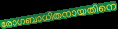
രോഗബാധിതനായതിനെ